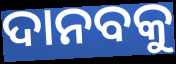
ଦାନବକୁ